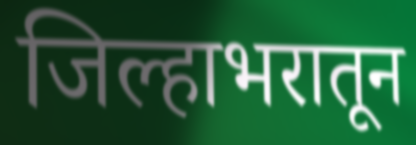
जिल्हाभरातून